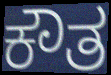
ಕೌತ